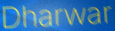
Dharwar